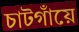
চাটগাঁয়ে